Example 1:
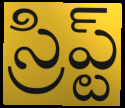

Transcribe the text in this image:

స్రిప్ట్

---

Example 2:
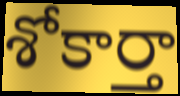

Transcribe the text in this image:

శోకార్తా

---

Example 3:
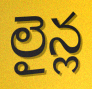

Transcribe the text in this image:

లైన్ల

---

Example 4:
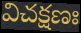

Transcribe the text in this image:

విచక్షణః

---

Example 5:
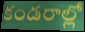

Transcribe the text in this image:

కండరాల్లో